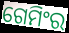
ଗେମିଂର